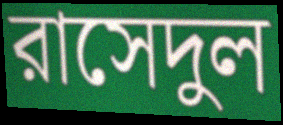
রাসেদুল